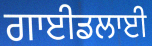
ਗਾਈਡਲਾਈ